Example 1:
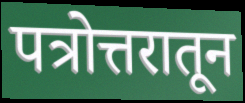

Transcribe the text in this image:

पत्रोत्तरातून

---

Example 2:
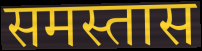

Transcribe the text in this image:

समस्तास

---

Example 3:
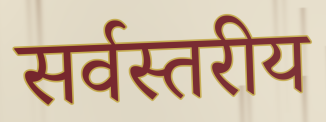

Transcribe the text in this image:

सर्वस्तरीय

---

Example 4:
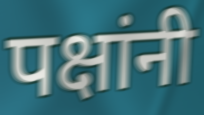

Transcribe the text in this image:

पक्षांनी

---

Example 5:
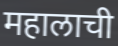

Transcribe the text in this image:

महालाची